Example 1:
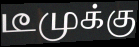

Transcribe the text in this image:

டீமுக்கு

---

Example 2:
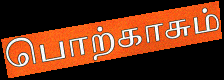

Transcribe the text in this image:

பொற்காசும்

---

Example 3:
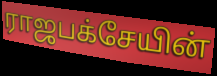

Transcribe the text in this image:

ராஜபக்சேயின்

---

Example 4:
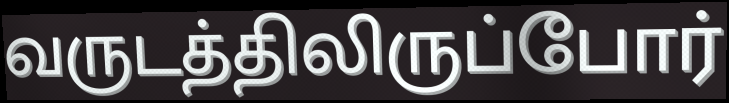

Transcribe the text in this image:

வருடத்திலிருப்போர்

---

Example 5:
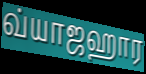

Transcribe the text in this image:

வ்யாஜஹார